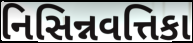
નિસિન્નવત્તિકા